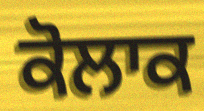
ਕੋਲਾਕ